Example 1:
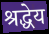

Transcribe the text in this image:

श्रद्धेय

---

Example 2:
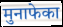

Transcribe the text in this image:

मुनाफेका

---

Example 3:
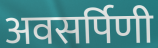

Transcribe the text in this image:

अवसर्पिणी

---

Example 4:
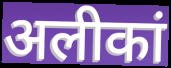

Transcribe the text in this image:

अलीकां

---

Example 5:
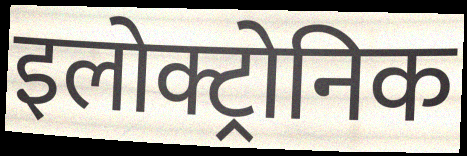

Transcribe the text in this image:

इलोक्ट्रोनिक